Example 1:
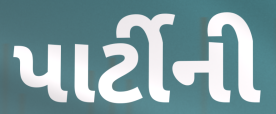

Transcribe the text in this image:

પાર્ટીની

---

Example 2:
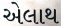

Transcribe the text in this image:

એલાથ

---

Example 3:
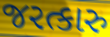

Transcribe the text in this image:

જરત્કારુ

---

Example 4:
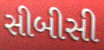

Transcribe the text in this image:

સીબીસી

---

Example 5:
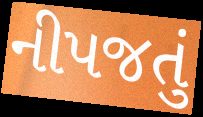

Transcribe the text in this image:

નીપજતું